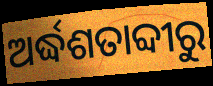
ଅର୍ଦ୍ଧଶତାବ୍ଦୀରୁ